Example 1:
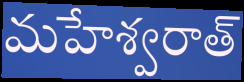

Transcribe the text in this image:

మహేశ్వరాత్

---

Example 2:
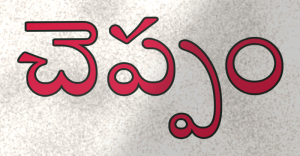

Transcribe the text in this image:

చెప్పం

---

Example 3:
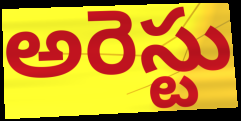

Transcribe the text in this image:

అరెస్టు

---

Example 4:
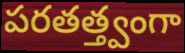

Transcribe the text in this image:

పరతత్త్వంగా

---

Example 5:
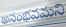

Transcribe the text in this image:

అసంభవమని